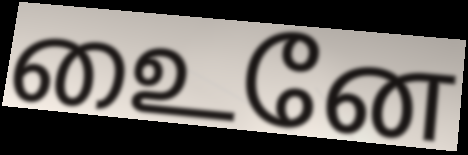
உைனே